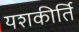
यशकीर्ति